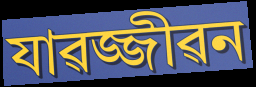
যাৱজ্জীৱন